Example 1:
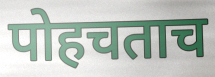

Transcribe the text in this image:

पोहचताच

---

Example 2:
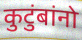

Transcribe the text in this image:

कुटुंबांनो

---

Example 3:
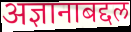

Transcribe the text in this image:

अज्ञानाबद्दल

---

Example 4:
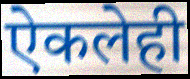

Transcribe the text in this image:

ऐकलेही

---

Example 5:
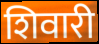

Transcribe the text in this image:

शिवारी